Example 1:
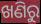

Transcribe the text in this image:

ଖଣିରୁ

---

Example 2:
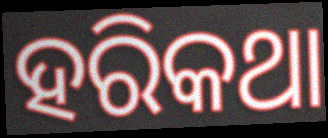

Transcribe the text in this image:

ହରିକଥା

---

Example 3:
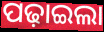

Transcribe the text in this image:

ପଢ଼ାଇଲା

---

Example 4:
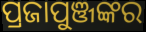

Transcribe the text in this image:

ପ୍ରଜାପୁଞ୍ଜଙ୍କର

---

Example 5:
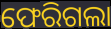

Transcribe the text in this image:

ଫେରିଗଲା